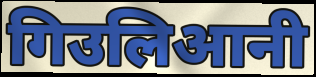
गिउलिआनी